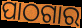
ପାଠଗାର